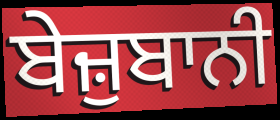
ਬੇਜ਼ੁਬਾਨੀ